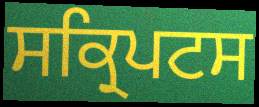
ਸਕ੍ਰਿਪਟਸ